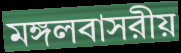
মঙ্গলবাসরীয়